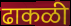
ढाकळी